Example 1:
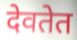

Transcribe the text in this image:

देवतेत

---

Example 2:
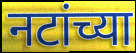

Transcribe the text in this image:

नटांच्या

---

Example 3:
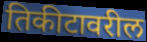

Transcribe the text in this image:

तिकीटावरील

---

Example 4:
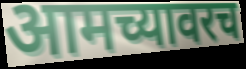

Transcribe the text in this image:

आमच्यावरच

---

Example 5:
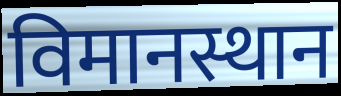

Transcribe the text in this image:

विमानस्थान